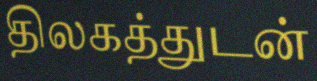
திலகத்துடன்